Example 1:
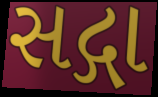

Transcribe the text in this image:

સદ્ગા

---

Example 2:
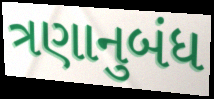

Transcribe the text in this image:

ત્રણાનુબંધ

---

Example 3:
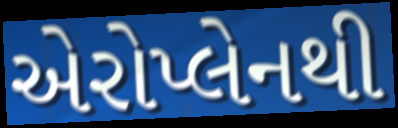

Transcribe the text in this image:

એરોપ્લેનથી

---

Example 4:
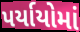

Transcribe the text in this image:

પર્યાયોમાં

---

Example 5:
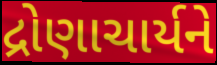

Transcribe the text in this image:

દ્રોણાચાર્યને